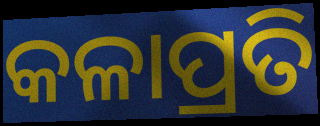
କଳାପ୍ରତି